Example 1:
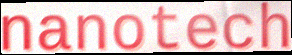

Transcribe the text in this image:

nanotech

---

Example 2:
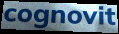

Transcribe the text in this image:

cognovit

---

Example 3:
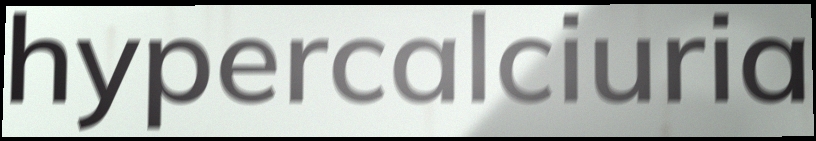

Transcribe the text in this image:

hypercalciuria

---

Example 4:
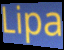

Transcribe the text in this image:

Lipa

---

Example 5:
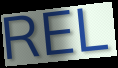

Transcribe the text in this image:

REL